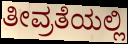
ತೀವ್ರತೆಯಲ್ಲಿ